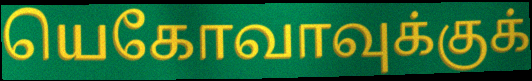
யெகோவாவுக்குக்